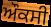
ਔਕਸੀ